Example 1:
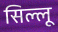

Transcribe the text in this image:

सिल्लू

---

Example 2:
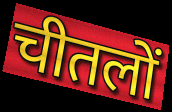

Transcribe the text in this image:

चीतलों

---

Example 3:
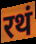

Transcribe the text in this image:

रथं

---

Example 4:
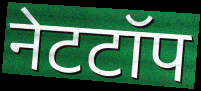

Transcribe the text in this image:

नेटटॉप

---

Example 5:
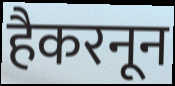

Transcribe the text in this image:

हैकरनून